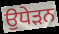
ਉਧੇੜਨ